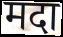
मदा